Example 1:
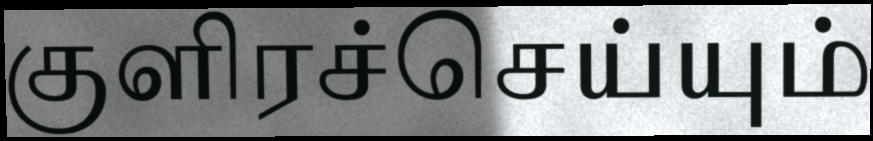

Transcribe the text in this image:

குளிரச்செய்யும்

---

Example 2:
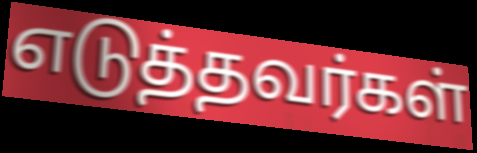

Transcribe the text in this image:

எடுத்தவர்கள்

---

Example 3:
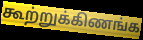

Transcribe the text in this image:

கூற்றுக்கிணங்க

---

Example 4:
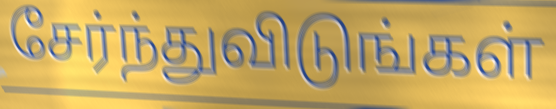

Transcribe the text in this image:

சேர்ந்துவிடுங்கள்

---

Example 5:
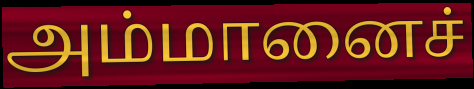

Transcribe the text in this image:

அம்மானைச்